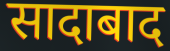
सादाबाद